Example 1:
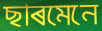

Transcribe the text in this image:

ছাৰমেনে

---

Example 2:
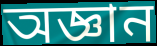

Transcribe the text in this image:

অজ্ঞান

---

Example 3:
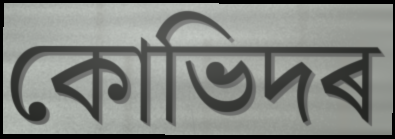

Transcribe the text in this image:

কোভিদৰ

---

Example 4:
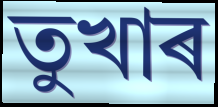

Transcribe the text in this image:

তুখাৰ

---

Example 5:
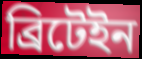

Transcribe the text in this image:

ব্ৰিটেইন